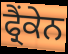
ਫ੍ਰੈਂਕੇਨ